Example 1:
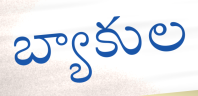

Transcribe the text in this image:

బ్యాకుల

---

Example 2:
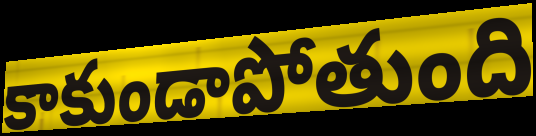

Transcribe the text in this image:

కాకుండాపోతుంది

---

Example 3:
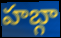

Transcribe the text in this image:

హబ్గా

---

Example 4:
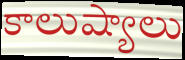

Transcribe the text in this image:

కాలుష్యాలు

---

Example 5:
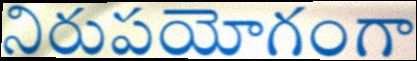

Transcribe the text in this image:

నిరుపయోగంగా